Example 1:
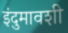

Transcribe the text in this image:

इंदुमावशी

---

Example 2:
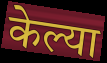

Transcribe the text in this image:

केल्या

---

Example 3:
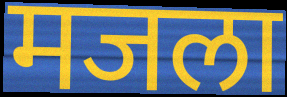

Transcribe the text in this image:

मजला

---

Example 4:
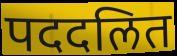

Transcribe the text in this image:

पददलित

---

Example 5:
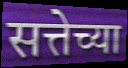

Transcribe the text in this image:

सत्तेच्या